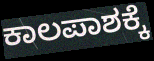
ಕಾಲಪಾಶಕ್ಕೆ